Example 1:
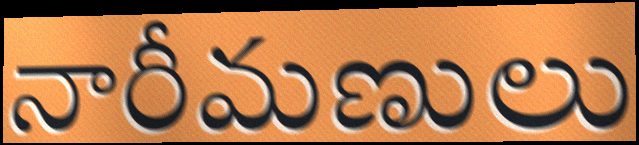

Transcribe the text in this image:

నారీమణులు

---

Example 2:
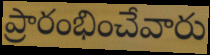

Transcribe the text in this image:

ప్రారంభించేవారు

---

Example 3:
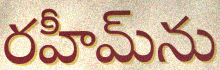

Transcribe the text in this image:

రహీమ్‌ను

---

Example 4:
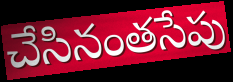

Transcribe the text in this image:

చేసినంతసేపు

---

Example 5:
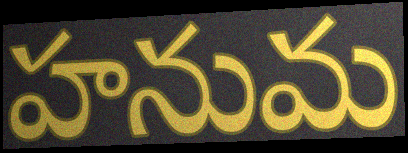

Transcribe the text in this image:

హనుమ